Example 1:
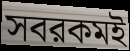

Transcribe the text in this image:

সবরকমই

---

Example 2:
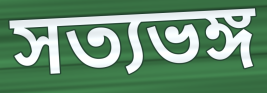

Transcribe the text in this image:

সত্যভঙ্গ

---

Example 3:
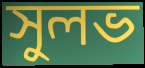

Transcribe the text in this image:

সুলভ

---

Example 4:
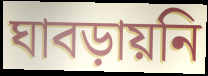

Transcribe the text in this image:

ঘাবড়ায়নি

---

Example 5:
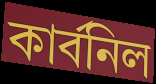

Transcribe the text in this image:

কার্বনিল